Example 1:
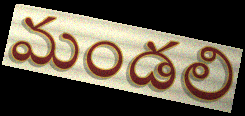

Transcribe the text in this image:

మండలి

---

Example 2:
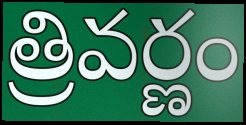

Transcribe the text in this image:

త్రివర్ణం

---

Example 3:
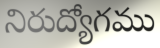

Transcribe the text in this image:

నిరుద్యోగము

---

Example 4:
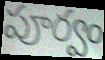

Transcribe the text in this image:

పూర్వం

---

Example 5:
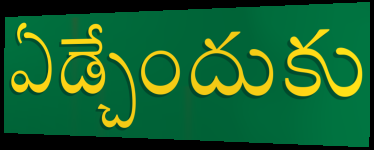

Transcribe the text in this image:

ఏడ్చేందుకు